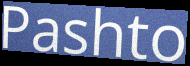
Pashto